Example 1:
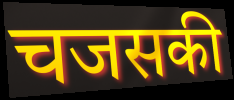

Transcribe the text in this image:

चजसकी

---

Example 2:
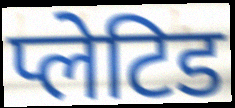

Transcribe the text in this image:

प्लेटिड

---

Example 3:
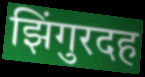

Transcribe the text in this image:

झिंगुरदह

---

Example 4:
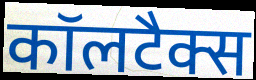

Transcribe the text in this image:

कॉलटैक्स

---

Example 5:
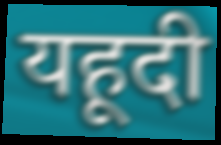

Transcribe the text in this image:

यहूदी